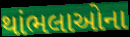
થાંભલાઓના